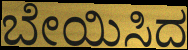
ಬೇಯಿಸಿದ